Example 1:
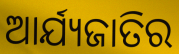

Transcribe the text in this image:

ଆର୍ଯ୍ୟଜାତିର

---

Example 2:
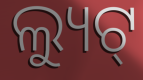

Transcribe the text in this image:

ଲ୍ୟୁଟ୍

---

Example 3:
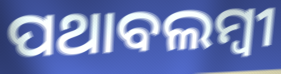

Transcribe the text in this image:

ପଥାବଲମ୍ବୀ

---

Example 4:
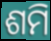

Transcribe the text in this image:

ଶମି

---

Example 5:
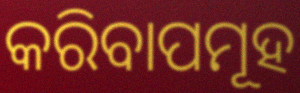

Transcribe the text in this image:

କରିବାପମୂହ